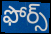
ఫోర్స్